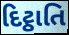
દિટ્ઠાતિ